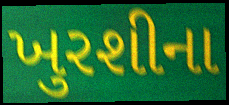
ખુરશીના